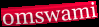
omswami